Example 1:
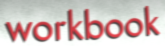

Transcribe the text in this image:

workbook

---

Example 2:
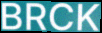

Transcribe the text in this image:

BRCK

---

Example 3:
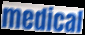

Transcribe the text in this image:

medical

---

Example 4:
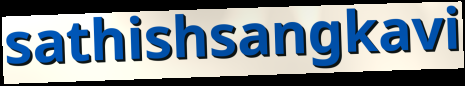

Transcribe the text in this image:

sathishsangkavi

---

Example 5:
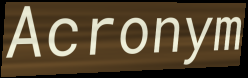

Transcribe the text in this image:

Acronym